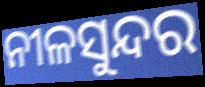
ନୀଳସୁନ୍ଦର